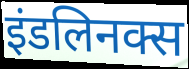
इंडलिनक्स